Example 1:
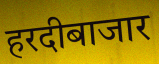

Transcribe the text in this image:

हरदीबाजार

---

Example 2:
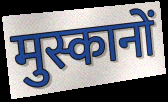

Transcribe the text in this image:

मुस्कानों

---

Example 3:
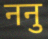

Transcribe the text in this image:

ननु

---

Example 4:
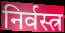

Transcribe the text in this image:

निर्वस्‍त्र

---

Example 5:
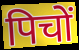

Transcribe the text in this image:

पिचों